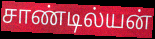
சாண்டில்யன்